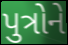
પુત્રોને